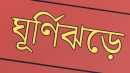
ঘূর্ণিঝড়ে